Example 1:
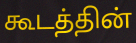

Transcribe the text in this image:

கூடத்தின்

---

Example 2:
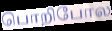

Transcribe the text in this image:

பொறிபோல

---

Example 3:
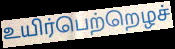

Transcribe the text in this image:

உயிர்பெற்றெழச்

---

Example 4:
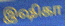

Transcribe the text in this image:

இஷிகா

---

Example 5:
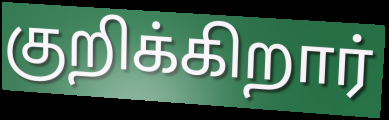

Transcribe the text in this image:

குறிக்கிறார்